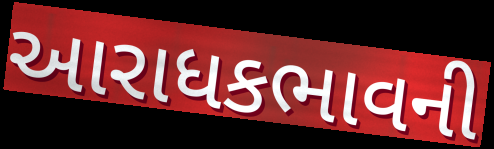
આરાધકભાવની